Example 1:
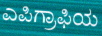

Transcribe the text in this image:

ಎಪಿಗ್ರಾಫಿಯ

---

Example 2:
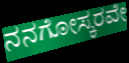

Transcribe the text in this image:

ನನಗೋಸ್ಕರವೇ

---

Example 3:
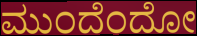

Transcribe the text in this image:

ಮುಂದೆಂದೋ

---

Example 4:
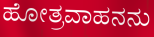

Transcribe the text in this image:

ಹೋತ್ರವಾಹನನು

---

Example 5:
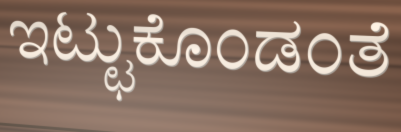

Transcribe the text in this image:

ಇಟ್ಟುಕೊಂಡಂತೆ